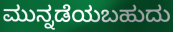
ಮುನ್ನಡೆಯಬಹುದು